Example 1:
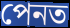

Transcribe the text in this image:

পেনত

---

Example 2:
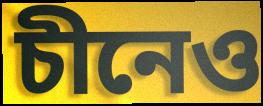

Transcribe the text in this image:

চীনেও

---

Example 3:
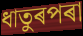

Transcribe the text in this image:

ধাতুৰপৰা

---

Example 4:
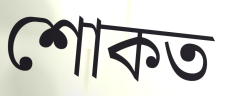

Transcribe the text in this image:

শোকত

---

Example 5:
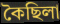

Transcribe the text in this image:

কৈছিলা